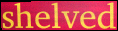
shelved